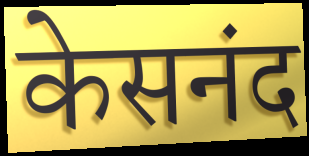
केसनंद